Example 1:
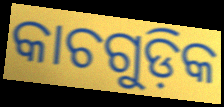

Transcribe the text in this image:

କାଚଗୁଡ଼ିକ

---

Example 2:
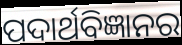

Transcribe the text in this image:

ପଦାର୍ଥବିଜ୍ଞାନର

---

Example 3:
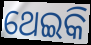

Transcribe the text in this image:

ଥେଇକି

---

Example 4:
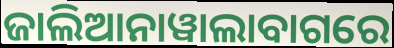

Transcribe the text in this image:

ଜାଲିଆନାୱାଲାବାଗରେ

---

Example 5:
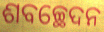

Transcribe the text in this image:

ଶବଚ୍ଛେଦନ